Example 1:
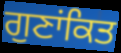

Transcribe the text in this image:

ਗੁਣਾਂਕਿਤ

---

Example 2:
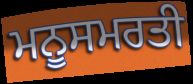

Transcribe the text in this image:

ਮਨੂਸਮਰਤੀ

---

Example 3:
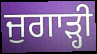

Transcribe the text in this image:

ਜੁਗਾੜ੍ਹੀ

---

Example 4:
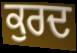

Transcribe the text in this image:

ਕੁਰਦ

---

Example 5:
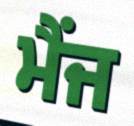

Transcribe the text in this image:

ਮੈਂਜ